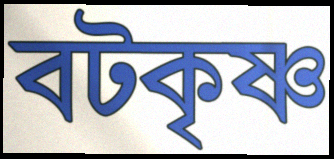
বটকৃষ্ণ